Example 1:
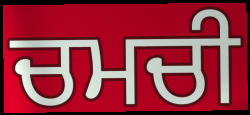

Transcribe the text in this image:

ਚਮਚੀ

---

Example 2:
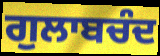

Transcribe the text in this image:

ਗੁਲਾਬਚੰਦ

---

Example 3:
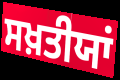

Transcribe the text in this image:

ਸਖ਼ਤੀਯਾਂ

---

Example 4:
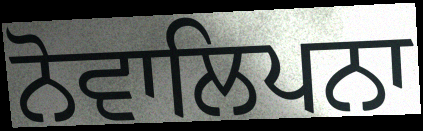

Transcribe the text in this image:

ਨੋਵਾਲਿਪਨਾ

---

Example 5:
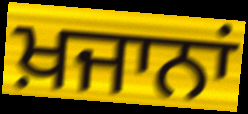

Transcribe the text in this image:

ਖ਼ਜਾਨਾਂ